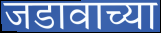
जडावाच्या